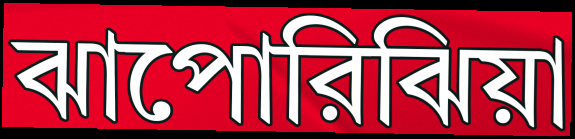
ঝাপোরিঝিয়া